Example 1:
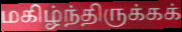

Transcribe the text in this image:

மகிழ்ந்திருக்கக்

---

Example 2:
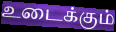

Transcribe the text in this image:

உடைக்கும்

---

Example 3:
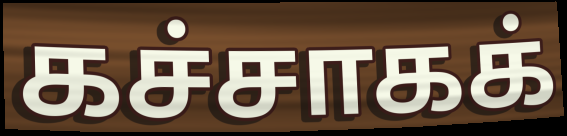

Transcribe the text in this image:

கச்சாகக்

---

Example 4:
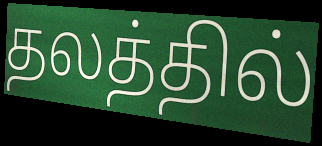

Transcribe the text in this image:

தலத்தில்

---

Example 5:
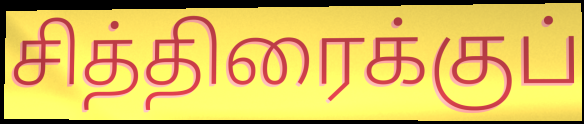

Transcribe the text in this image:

சித்திரைக்குப்